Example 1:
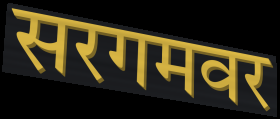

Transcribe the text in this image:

सरगमवर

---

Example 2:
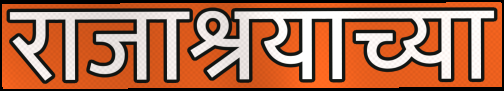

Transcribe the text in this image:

राजाश्रयाच्या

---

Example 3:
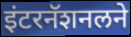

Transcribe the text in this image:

इंटरनॅशनलने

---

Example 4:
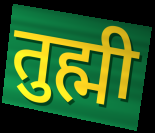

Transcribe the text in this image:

तुह्मी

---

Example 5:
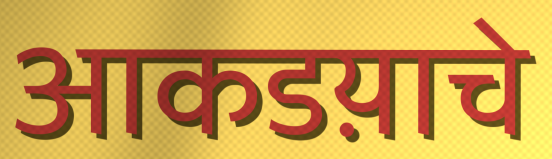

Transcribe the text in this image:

आकडय़ाचे